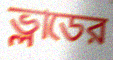
ভ্লাডের